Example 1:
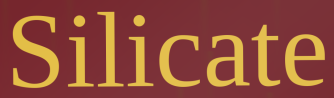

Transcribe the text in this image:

Silicate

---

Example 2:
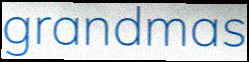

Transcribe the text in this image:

grandmas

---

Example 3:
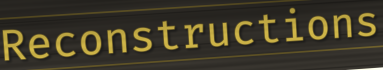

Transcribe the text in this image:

Reconstructions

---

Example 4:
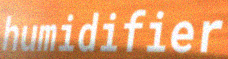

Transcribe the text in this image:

humidifier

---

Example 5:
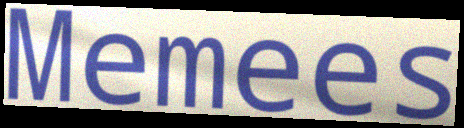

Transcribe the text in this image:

Memees